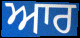
ਆਰ